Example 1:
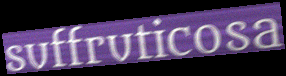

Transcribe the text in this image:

suffruticosa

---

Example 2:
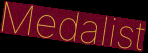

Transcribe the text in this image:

Medalist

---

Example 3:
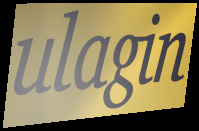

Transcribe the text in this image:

ulagin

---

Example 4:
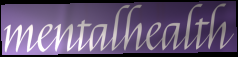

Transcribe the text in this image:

mentalhealth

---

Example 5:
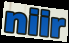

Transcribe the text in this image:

niir